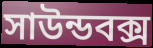
সাউন্ডবক্স